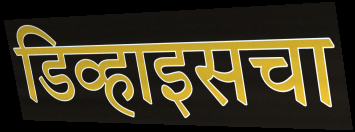
डिव्हाइसचा